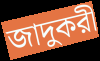
জাদুকরী